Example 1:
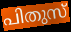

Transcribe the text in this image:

പിതുസ്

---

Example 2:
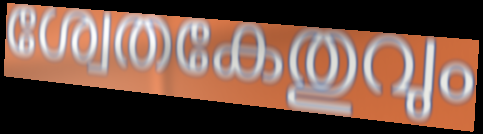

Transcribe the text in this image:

ശ്വേതകേതുവും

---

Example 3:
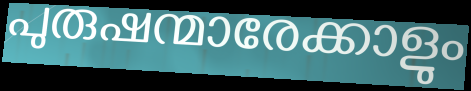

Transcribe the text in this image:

പുരുഷന്മാരേക്കാളും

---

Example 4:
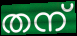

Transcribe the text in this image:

തന്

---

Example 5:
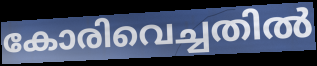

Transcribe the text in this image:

കോരിവെച്ചതിൽ